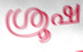
ശ്രൂഷ